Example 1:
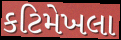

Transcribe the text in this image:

કટિમેખલા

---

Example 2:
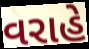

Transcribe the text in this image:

વરાહે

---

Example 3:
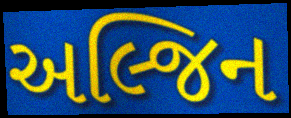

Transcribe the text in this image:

અલ્જિન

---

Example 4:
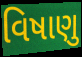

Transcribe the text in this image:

વિષાણુ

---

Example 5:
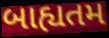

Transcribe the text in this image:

બાહ્યતમ